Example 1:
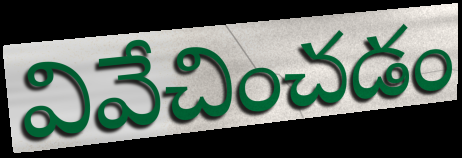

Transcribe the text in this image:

వివేచించడం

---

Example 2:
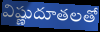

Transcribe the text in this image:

విష్ణుదూతలతో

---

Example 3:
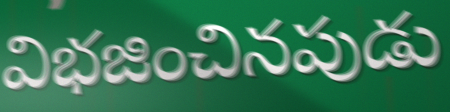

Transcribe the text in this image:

విభజించినపుడు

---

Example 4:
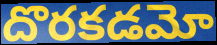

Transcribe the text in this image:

దొరకడమో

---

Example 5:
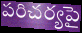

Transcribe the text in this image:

పరిచర్యపై